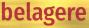
belagere